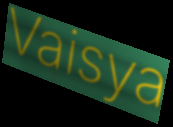
Vaisya